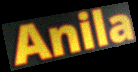
Anila